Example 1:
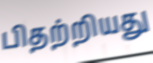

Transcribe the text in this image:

பிதற்றியது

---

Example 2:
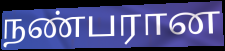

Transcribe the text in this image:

நண்பரான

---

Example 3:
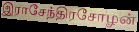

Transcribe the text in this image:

இராசேந்திரசோழன்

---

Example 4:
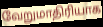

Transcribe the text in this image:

வேறுமாதிரியாக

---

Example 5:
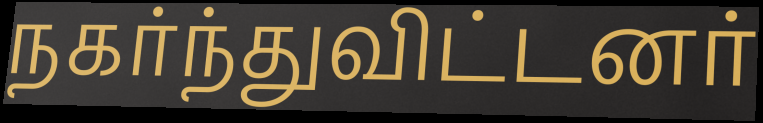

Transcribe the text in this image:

நகர்ந்துவிட்டனர்